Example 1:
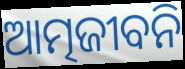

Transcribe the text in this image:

ଆତ୍ମଜୀବନି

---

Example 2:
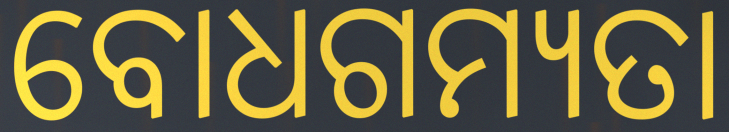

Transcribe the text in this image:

ବୋଧଗମ୍ୟତା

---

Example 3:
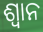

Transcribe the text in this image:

ଶ୍ଵାନ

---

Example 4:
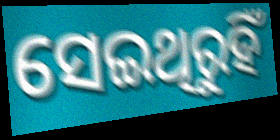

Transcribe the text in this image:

ସେଇଥିରୁହିଁ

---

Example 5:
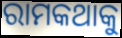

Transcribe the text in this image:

ରାମକଥାକୁ